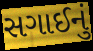
સગાઈનું